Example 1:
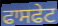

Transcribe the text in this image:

ਫਾਸਫੇਟ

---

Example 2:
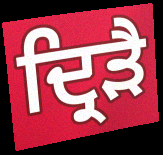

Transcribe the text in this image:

ਦ੍ਰਿੜੈ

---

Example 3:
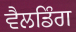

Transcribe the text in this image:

ਵੈਲਡਿੰਗ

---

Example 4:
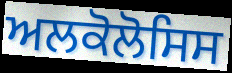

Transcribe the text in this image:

ਅਲਕੋਲੋਸਿਸ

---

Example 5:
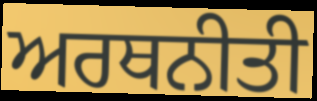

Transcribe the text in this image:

ਅਰਥਨੀਤੀ